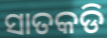
ସାତକଡି